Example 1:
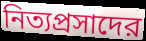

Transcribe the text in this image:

নিত্যপ্রসাদের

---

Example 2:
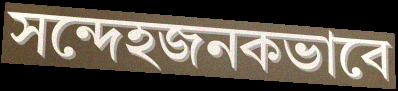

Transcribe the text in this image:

সন্দেহজনকভাবে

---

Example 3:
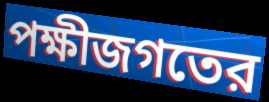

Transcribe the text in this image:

পক্ষীজগতের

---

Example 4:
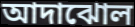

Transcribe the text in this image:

আদাঝোল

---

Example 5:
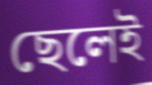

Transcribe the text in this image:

ছেলেই